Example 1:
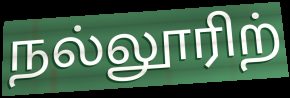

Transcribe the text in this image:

நல்லூரிற்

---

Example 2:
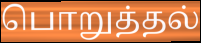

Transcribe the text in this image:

பொறுத்தல்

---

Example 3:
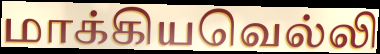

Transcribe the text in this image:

மாக்கியவெல்லி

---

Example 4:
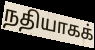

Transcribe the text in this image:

நதியாகக்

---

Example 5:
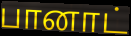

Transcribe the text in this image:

பானாட்